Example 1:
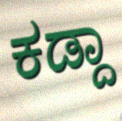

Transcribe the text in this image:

ಕಡ್ದಾ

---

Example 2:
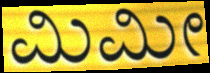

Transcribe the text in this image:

ಮಿಮೀ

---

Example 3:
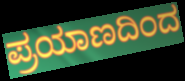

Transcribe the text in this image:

ಪ್ರಯಾಣದಿಂದ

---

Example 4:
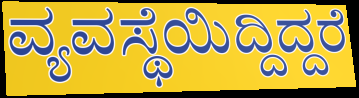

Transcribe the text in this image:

ವ್ಯವಸ್ಥೆಯಿದ್ದಿದ್ದರೆ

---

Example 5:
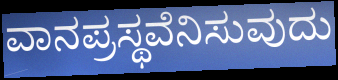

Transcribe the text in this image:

ವಾನಪ್ರಸ್ಥವೆನಿಸುವುದು